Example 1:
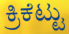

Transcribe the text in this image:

ಕ್ರಿಕೆಟ್ಟು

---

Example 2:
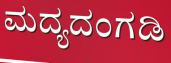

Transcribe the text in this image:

ಮದ್ಯದಂಗಡಿ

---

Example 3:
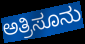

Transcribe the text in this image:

ಅತ್ರಿಸೂನು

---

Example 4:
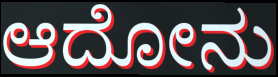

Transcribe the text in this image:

ಆದೋನು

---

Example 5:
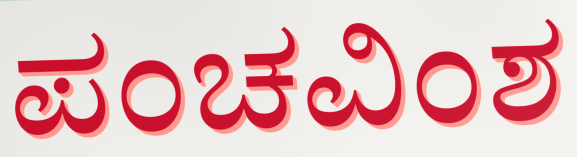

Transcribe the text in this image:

ಪಂಚವಿಂಶ